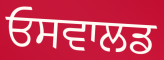
ਓਸਵਾਲਡ